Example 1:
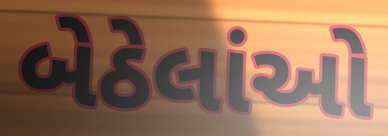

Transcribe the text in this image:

બેઠેલાંઓ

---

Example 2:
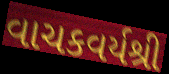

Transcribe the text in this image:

વાચકવર્યશ્રી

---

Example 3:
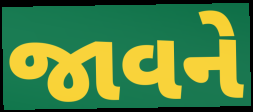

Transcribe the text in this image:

જાવને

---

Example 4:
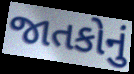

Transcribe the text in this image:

જાતકોનું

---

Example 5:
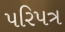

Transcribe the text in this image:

પરિપત્ર